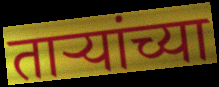
तार्‍यांच्या